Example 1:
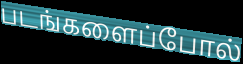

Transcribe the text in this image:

படங்களைப்போல்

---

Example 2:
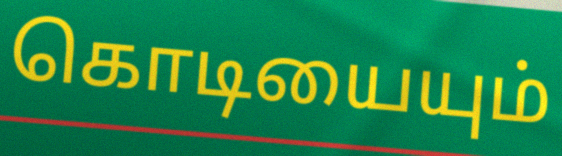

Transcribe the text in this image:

கொடியையும்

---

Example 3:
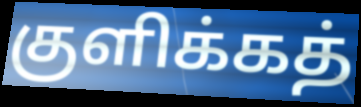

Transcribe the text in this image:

குளிக்கத்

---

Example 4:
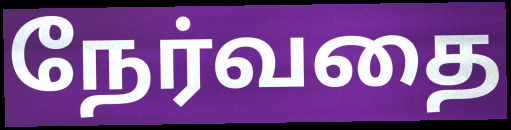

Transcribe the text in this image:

நேர்வதை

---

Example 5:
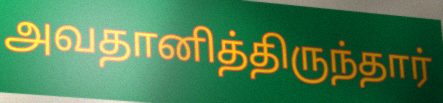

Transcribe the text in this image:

அவதானித்திருந்தார்